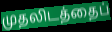
முதலிடத்தைப்